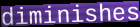
diminishes